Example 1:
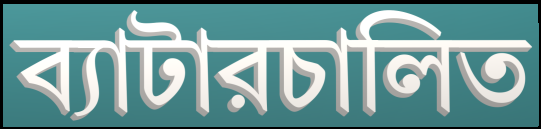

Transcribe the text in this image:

ব্যাটারচালিত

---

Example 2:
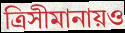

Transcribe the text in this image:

ত্রিসীমানায়ও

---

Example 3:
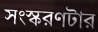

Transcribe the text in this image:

সংস্করণটার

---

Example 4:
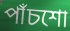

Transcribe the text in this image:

পাঁচশো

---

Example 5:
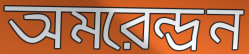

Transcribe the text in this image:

অমরেন্দ্রন